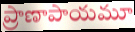
ప్రాణాపాయమూ